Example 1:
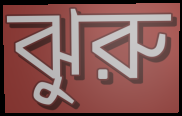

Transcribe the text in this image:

ঝুরু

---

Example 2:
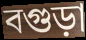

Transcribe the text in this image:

বগুড়া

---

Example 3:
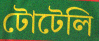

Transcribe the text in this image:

টোটেলি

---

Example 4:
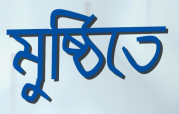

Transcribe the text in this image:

মুষ্ঠিতে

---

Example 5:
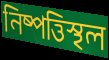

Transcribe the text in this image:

নিষ্পত্তিস্থল